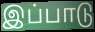
இப்பாடு